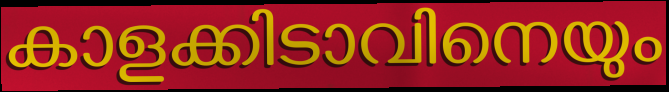
കാളക്കിടാവിനെയും